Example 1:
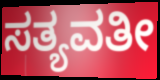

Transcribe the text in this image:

ಸತ್ಯವತೀ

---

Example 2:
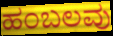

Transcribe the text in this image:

ಹಂಬಲವು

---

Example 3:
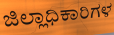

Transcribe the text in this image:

ಜಿಲ್ಲಾಧಿಕಾರಿಗಳ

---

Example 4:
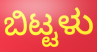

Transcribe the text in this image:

ಬಿಟ್ಟಳು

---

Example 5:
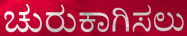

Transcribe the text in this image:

ಚುರುಕಾಗಿಸಲು